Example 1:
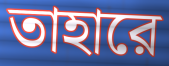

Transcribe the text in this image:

তাহারে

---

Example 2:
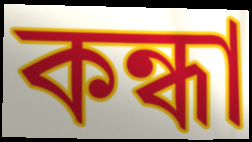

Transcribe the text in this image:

কন্ধা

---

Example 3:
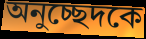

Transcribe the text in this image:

অনুচ্ছেদকে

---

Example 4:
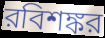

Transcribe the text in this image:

রবিশঙ্কর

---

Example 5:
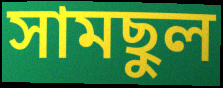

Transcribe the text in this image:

সামছুল